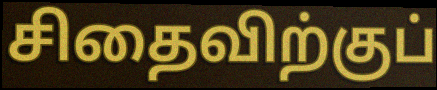
சிதைவிற்குப்